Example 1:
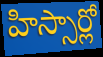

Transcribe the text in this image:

హిస్సార్లో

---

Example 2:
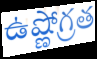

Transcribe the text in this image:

ఉష్ణోగ్రత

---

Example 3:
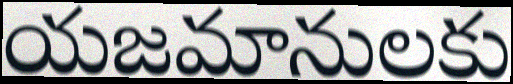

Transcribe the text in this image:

యజమానులకు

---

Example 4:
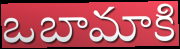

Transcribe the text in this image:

ఒబామాకి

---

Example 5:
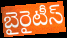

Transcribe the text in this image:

బైరైటీస్